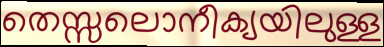
തെസ്സലൊനീക്യയിലുള്ള